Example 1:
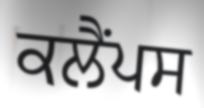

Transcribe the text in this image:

ਕਲੈਂਪਸ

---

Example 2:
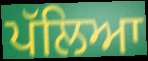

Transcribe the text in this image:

ਪੱਲਿਆ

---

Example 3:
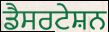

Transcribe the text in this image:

ਡੈਸਰਟੇਸ਼ਨ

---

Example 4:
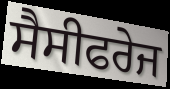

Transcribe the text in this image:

ਸੈਸੀਫਰੇਜ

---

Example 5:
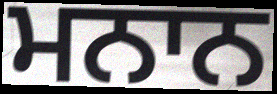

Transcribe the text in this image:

ਮਨਾਨ